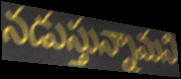
నడుస్తున్నామని